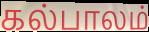
கல்பாலம்